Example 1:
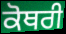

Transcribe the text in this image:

ਕੋਥਰੀ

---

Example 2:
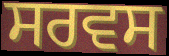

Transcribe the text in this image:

ਸਰਵਸ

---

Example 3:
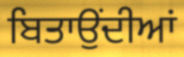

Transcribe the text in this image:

ਬਿਤਾਉਂਦੀਆਂ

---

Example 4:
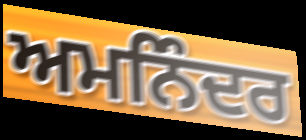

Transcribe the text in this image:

ਅਮਨਿੰਦਰ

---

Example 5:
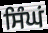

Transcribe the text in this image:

ਸਿੰਘਂ